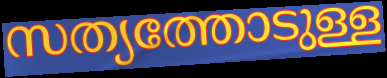
സത്യത്തോടുള്ള